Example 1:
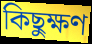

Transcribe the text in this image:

কিছুক্ষণ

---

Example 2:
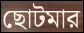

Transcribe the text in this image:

ছোটমার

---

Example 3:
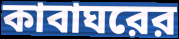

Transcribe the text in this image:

কাবাঘরের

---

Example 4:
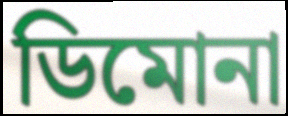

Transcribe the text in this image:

ডিমোনা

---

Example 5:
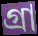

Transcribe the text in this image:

গ্রা